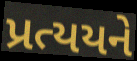
પ્રત્યયને